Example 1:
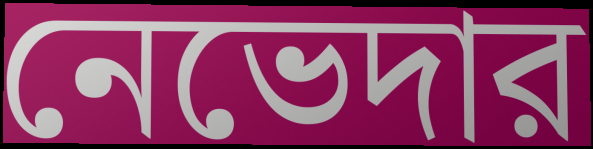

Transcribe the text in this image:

নেভেদার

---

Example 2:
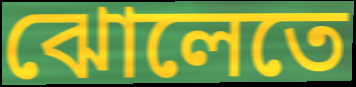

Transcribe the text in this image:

ঝোলেতে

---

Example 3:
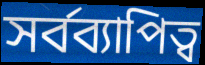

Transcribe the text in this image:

সর্বব্যাপিত্ব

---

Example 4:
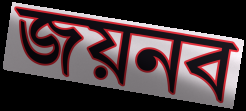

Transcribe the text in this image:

জয়নব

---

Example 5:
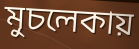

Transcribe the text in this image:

মুচলেকায়